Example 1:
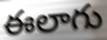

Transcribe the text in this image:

ఈలాగు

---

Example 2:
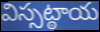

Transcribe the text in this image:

విస్సట్ఠాయ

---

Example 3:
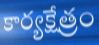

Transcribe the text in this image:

కార్యక్షేత్రం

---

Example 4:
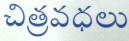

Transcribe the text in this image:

చిత్రవధలు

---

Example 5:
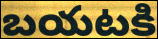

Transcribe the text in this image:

బయటకి